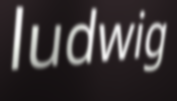
ludwig